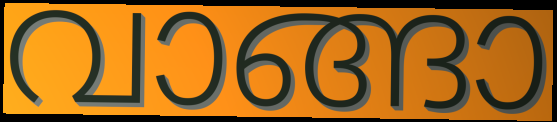
വാങ്ങാ